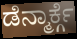
ಡೆನ್ಮಾರ್ಕ್ಗೆ